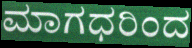
ಮಾಗಧರಿಂದ